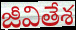
జీవితేశ